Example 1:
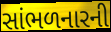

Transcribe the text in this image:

સાંભળનારની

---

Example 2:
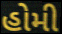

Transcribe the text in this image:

હોમી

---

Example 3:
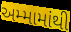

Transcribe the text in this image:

અમ્મામાંથી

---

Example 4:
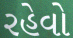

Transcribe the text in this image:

રહેવો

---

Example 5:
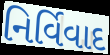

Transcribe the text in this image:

નિર્વિવાદ